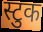
स्टुक